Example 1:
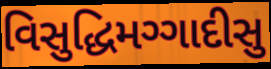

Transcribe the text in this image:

વિસુદ્ધિમગ્ગાદીસુ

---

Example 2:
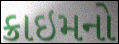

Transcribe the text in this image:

ક્રાઇમનો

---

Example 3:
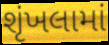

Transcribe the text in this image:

શૃંખલામાં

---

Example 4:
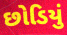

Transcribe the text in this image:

છોડિયું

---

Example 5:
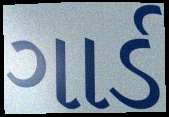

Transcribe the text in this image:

ગાર્ડ